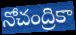
నోచంద్రికా